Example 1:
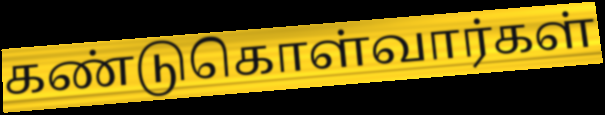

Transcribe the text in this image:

கண்டுகொள்வார்கள்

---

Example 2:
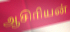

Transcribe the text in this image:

ஆசிரியன்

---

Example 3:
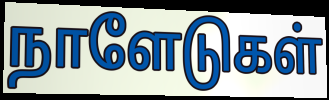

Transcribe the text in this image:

நாளேடுகள்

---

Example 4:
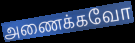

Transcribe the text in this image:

அணைக்கவோ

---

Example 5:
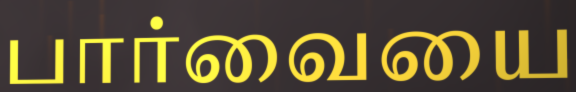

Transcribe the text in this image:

பார்வையை